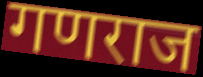
गणराज